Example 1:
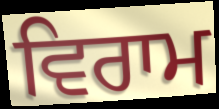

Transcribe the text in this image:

ਵਿਰਾਮ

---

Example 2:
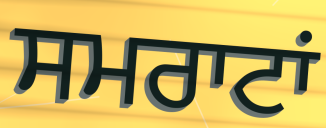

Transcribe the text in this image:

ਸਮਰਾਟਾਂ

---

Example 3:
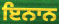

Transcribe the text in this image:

ਇਨਾਨ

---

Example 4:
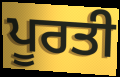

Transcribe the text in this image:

ਪੂਰਤੀ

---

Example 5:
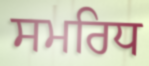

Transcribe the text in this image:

ਸਮਰਿਧ